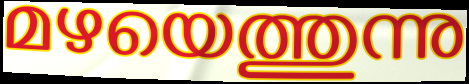
മഴയെത്തുന്നു